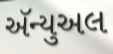
ઍન્યુઅલ